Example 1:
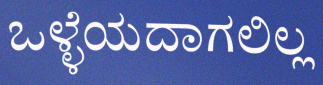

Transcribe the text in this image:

ಒಳ್ಳೆಯದಾಗಲಿಲ್ಲ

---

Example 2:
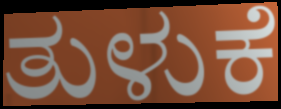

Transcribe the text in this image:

ತುಳುಕೆ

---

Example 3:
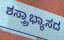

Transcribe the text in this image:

ಶಸ್ತ್ರಾಭ್ಯಾಸದ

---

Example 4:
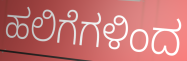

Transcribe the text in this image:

ಹಲಿಗೆಗಳಿಂದ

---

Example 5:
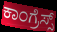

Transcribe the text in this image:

ಕಾಂಗ್ರೆಸ್ಸ್